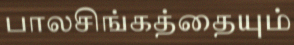
பாலசிங்கத்தையும்